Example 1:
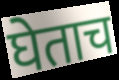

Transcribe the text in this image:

घेताच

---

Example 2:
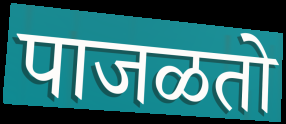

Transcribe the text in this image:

पाजळतो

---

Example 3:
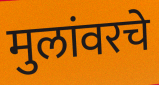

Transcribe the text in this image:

मुलांवरचे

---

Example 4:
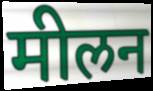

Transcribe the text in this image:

मीलन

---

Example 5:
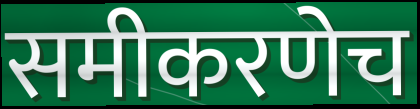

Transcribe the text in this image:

समीकरणेच